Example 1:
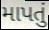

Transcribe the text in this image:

માપતું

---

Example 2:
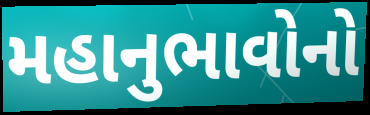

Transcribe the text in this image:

મહાનુભાવોનો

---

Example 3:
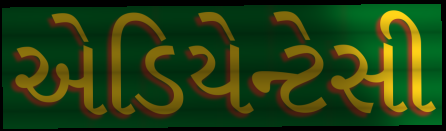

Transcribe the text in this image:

એડિયેન્ટેસી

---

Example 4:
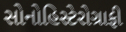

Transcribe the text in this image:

સોનોહિસ્ટેરોગ્રાફી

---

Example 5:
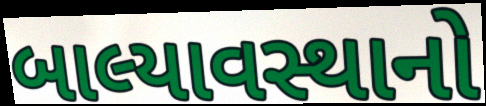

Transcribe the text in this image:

બાલ્યાવસ્થાનો